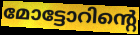
മോട്ടോറിന്റെ